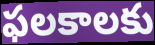
ఫలకాలకు